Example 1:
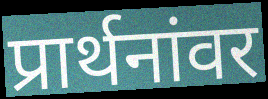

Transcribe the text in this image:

प्रार्थनांवर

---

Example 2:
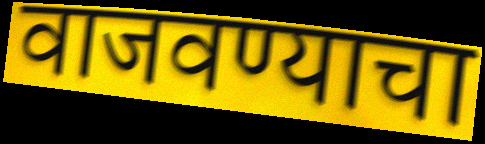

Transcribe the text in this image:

वाजवण्याचा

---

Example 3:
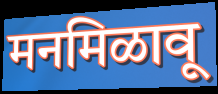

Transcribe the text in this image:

मनमिळावू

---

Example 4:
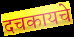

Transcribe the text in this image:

दचकायचे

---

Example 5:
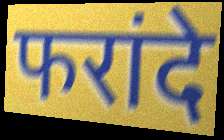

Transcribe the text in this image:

फरांदे